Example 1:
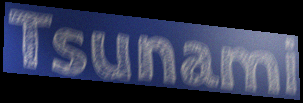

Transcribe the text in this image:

Tsunami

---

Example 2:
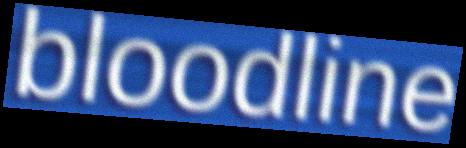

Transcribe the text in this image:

bloodline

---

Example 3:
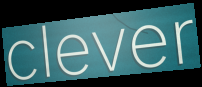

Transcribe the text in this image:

clever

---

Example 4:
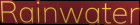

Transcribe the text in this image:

Rainwater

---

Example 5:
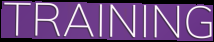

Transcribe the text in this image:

TRAINING